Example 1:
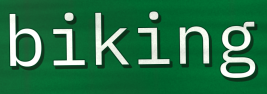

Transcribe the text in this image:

biking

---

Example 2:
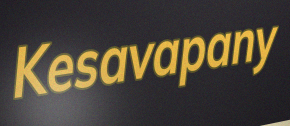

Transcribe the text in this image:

Kesavapany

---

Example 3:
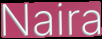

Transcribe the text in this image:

Naira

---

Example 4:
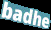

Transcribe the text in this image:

badhe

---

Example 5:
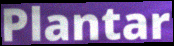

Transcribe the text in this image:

Plantar